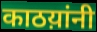
काठय़ांनी